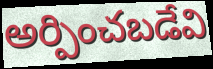
అర్పించబడేవి